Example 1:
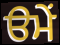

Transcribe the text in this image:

ੳਮੇਂ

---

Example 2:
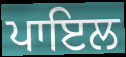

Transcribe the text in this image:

ਪਾਇਲ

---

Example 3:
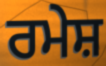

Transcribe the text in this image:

ਰਮੇਸ਼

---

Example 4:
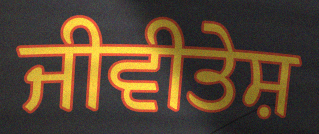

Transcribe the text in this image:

ਜੀਵੀਤੇਸ਼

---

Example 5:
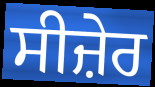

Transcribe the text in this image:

ਸੀਜ਼ੇਰ